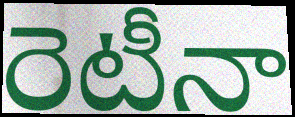
రెటీనా